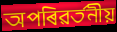
অপৰিৱৰ্তনীয়